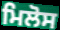
ਮਿਲੋਸ